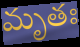
మృతః